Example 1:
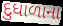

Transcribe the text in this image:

દુધાળાના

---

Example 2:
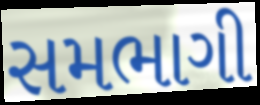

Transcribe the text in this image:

સમભાગી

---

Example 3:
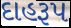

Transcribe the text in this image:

દાહરૂપ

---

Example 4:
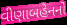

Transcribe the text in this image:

વીણાબહેનનો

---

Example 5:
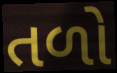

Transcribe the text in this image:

તળો